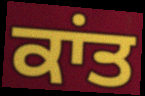
ਕਾਂਤ